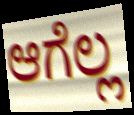
ಆಗೆಲ್ಲ